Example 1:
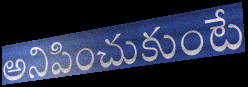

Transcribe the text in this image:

అనిపించుకుంటే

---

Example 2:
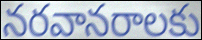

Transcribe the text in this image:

నరవానరాలకు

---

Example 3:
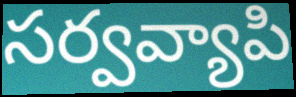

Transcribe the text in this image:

సర్వవ్యాపి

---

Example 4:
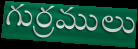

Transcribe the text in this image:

గుర్రములు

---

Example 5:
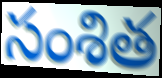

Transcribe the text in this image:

సంశిత